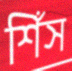
শিঁস